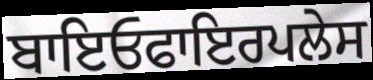
ਬਾਇਓਫਾਇਰਪਲੇਸ